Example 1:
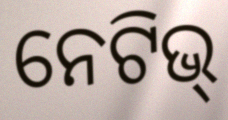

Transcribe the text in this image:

ନେଟିଭ୍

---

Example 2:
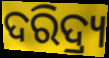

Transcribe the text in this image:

ଦରିଦ୍ର୍ୟ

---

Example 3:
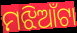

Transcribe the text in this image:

ମଝିଆଁଟା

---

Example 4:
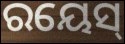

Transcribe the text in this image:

ରୟେସ୍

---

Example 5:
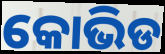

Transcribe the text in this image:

କୋଭିଡ